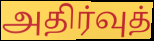
அதிர்வுத்